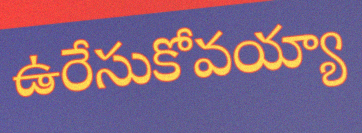
ఉరేసుకోవయ్యా